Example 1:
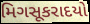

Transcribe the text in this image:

મિગસૂકરાદયો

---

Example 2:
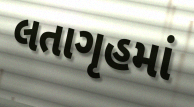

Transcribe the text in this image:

લતાગૃહમાં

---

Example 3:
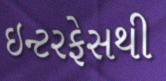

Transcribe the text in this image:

ઇન્ટરફેસથી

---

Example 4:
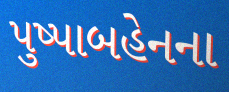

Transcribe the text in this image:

પુષ્પાબહેનના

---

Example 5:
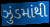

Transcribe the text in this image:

ઝુંડમાંથી